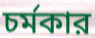
চর্মকার